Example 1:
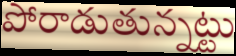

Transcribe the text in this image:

పోరాడుతున్నట్టు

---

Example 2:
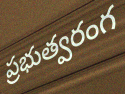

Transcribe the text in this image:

ప్రభుత్వరంగ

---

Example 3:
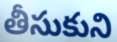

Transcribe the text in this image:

తీసుకుని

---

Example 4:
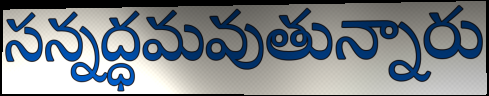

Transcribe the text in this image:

సన్నద్ధమవుతున్నారు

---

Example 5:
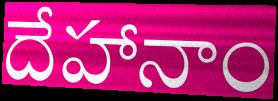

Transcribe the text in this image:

దేహానాం